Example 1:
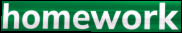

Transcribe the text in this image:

homework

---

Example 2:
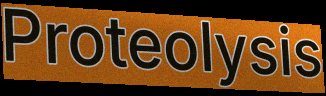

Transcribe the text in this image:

Proteolysis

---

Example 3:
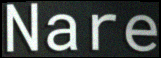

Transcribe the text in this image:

Nare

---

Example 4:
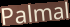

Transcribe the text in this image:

Palmal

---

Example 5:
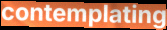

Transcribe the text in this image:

contemplating